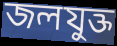
জলযুক্ত